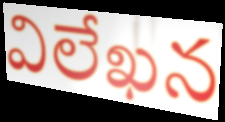
విలేఖన